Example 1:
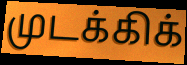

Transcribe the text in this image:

முடக்கிக்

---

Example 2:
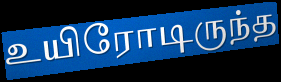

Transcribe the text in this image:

உயிரோடிருந்த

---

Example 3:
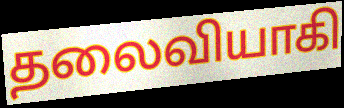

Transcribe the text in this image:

தலைவியாகி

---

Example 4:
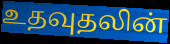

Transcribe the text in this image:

உதவுதலின்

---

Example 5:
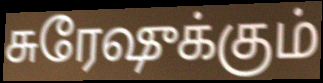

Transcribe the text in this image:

சுரேஷுக்கும்